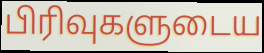
பிரிவுகளுடைய